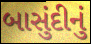
બાસુંદીનું